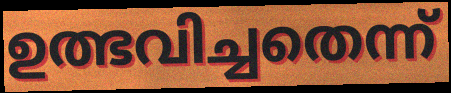
ഉത്ഭവിച്ചതെന്ന്